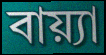
বায়্যা